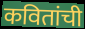
कवितांची